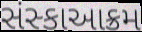
સંસ્કાઆક્રમ